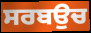
ਸਰਬਉਚ